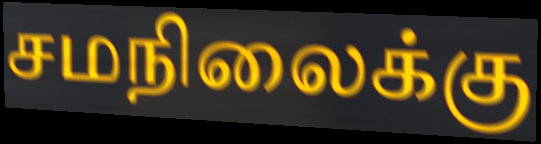
சமநிலைக்கு